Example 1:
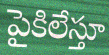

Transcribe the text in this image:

పైకిలేస్తూ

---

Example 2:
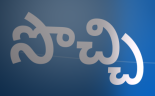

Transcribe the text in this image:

సొచ్చి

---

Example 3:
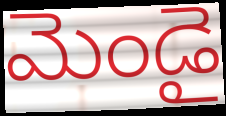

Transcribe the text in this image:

మెండై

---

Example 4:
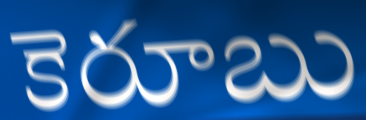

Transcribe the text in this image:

కెరూబు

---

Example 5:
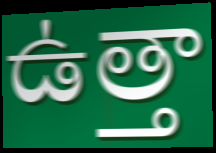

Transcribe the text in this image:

ఉత్తా